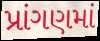
પ્રાંગણમાં